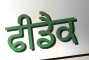
ਫੀਡੈਕ